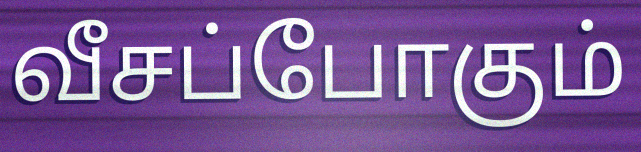
வீசப்போகும்